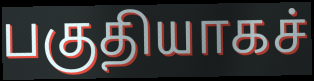
பகுதியாகச்